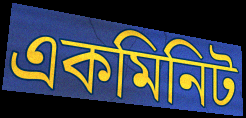
একমিনিট